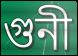
গুনী